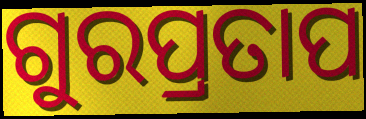
ଗୁରପ୍ରତାପ